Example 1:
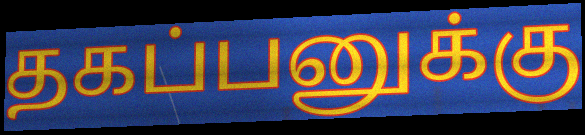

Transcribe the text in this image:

தகப்பனுக்கு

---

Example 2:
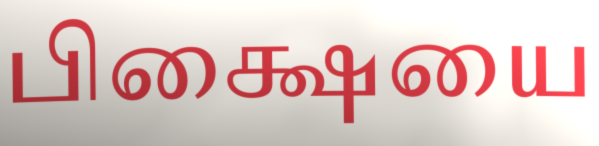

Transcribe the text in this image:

பிக்ஷையை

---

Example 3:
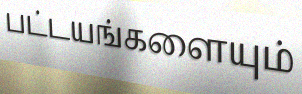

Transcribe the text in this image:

பட்டயங்களையும்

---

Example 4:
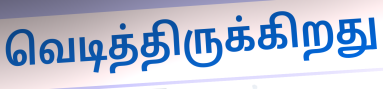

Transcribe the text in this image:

வெடித்திருக்கிறது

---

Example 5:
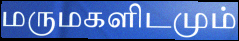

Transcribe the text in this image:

மருமகளிடமும்